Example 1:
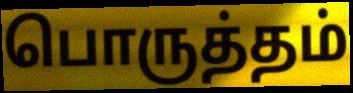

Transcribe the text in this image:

பொருத்தம்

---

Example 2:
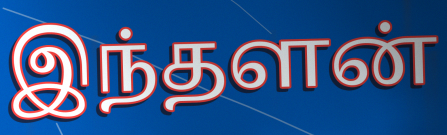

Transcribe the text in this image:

இந்தளன்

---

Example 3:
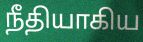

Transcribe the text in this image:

நீதியாகிய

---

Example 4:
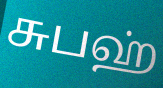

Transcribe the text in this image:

சுபஹ்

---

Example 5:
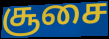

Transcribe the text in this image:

சூசை